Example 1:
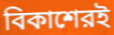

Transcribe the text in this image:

বিকাশেরই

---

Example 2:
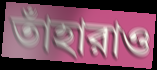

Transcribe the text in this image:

তাঁহারাও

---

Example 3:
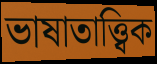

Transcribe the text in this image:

ভাষাতাত্ত্বিক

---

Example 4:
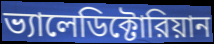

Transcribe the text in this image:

ভ্যালেডিক্টোরিয়ান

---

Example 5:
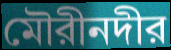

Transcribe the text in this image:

মৌরীনদীর